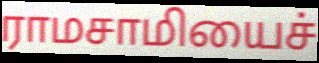
ராமசாமியைச்